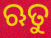
ଋତୁ